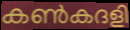
കൺകദളി